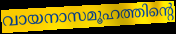
വായനാസമൂഹത്തിന്റെ